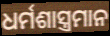
ଧର୍ମଶାସ୍ତ୍ରମାନ